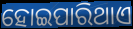
ହୋଇପାରିଥାଏ